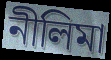
নীলিমা